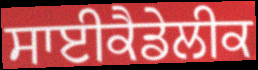
ਸਾਈਕੈਡੇਲੀਕ